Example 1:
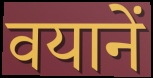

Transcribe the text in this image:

वयानें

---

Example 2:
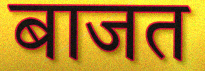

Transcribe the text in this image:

बाजत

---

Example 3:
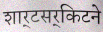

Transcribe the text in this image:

शार्टसर्किटने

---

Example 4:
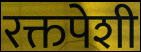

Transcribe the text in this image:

रक्तपेशी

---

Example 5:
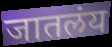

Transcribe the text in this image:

जातलंय